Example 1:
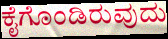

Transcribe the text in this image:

ಕೈಗೊಂಡಿರುವುದು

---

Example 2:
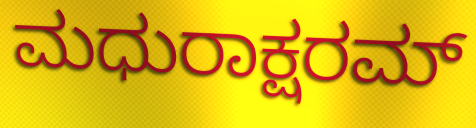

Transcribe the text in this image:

ಮಧುರಾಕ್ಷರಮ್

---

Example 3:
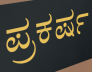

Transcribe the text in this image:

ಪ್ರಕರ್ಷ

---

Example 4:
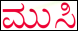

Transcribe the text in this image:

ಮುಸಿ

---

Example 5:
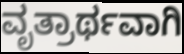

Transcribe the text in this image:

ವೃತ್ರಾರ್ಥವಾಗಿ